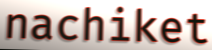
nachiket